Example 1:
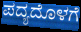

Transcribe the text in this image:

ಪದ್ಯದೊಳಗೆ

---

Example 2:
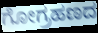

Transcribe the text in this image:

ಗೋಗ್ರಹಣದ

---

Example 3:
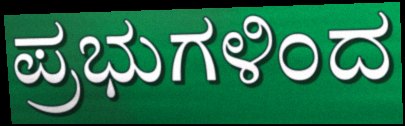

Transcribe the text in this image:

ಪ್ರಭುಗಳಿಂದ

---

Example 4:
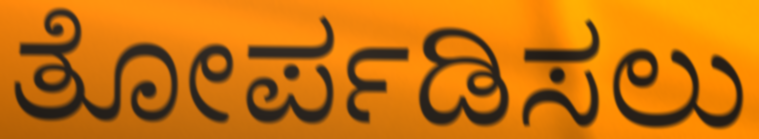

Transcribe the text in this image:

ತೋರ್ಪಡಿಸಲು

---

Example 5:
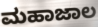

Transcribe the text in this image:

ಮಹಾಜಾಲ